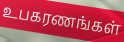
உபகரணங்கள்